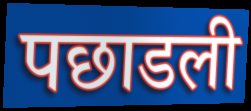
पछाडली